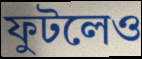
ফুটলেও